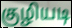
குழியடி